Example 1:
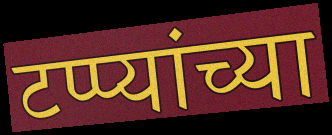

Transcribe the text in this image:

टप्प्यांच्या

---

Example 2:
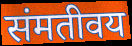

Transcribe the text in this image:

संमतीवय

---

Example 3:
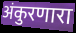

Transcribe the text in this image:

अंकुरणारा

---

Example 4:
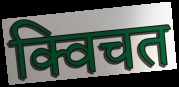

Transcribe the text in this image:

क्विचत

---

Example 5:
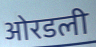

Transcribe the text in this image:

ओरडली